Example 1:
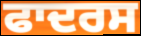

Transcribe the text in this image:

ਫਾਦਰਸ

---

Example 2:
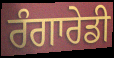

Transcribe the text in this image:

ਰੰਗਾਰੇਡੀ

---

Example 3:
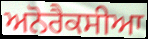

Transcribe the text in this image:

ਅਨੋਰੈਕਸੀਆ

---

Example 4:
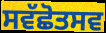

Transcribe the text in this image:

ਸਵੱਛੋਤਸਵ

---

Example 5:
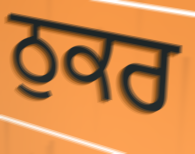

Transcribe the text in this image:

ਠੁਕਰ